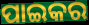
ପାଇକର